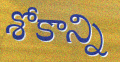
శోకాన్ని